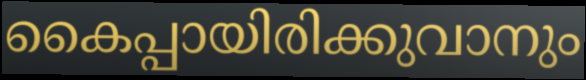
കൈപ്പായിരിക്കുവാനും